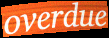
overdue